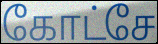
கோட்சே